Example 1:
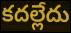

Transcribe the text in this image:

కదల్లేదు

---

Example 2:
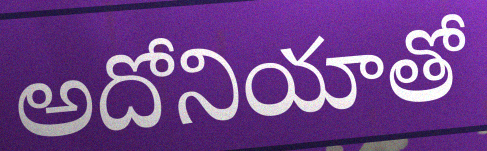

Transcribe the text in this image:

అదోనియాతో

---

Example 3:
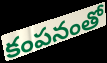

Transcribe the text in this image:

కంపనంతో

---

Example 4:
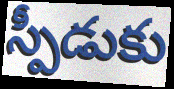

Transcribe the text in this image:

స్పీడుకు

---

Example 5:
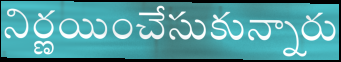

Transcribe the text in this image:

నిర్ణయించేసుకున్నారు